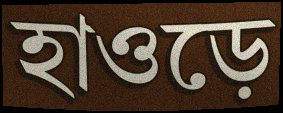
হাওড়ে